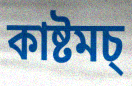
কাষ্টমচ্